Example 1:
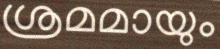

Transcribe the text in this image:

ശ്രമമായും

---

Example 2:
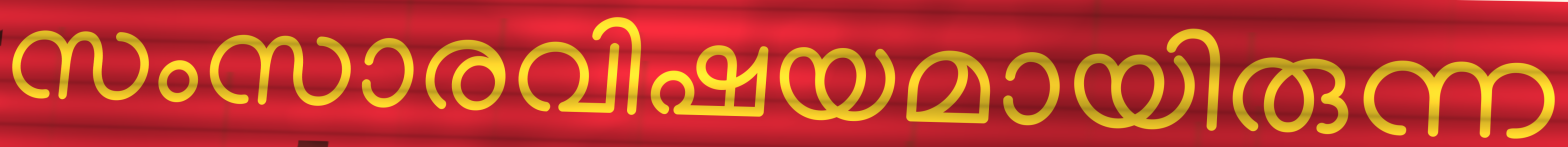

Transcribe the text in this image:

സംസാരവിഷയമായിരുന്ന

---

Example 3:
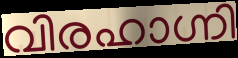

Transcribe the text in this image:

വിരഹാഗ്നി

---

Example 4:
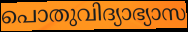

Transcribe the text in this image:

പൊതുവിദ്യാഭ്യാസ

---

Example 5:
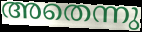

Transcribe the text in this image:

അതെന്നു